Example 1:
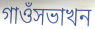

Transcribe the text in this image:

গাওঁসভাখন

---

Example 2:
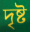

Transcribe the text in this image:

দৃষ্ট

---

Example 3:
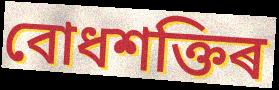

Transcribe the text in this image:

বোধশক্তিৰ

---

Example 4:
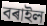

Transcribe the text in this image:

বৰাইল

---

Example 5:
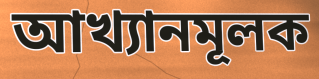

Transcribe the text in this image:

আখ্যানমূলক